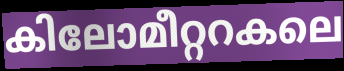
കിലോമീറ്ററകലെ